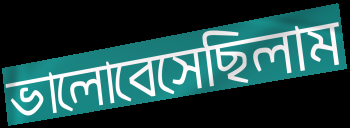
ভালোবেসেছিলাম